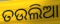
ତଉଲିଆ